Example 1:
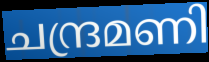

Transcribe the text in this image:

ചന്ദ്രമണി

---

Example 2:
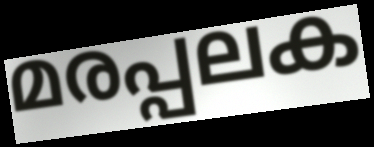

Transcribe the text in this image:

മരപ്പലക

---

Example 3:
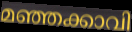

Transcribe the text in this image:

മഞ്ഞക്കാവി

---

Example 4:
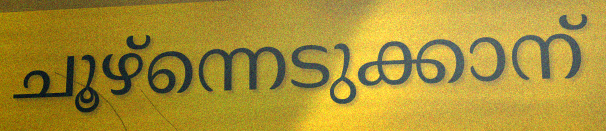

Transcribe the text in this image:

ചൂഴ്ന്നെടുക്കാന്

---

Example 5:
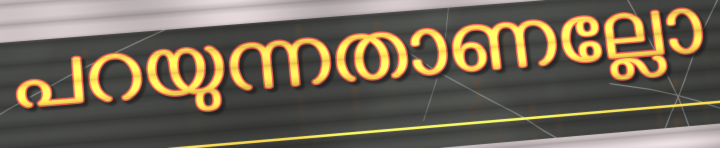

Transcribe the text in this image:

പറയുന്നതാണല്ലോ